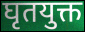
घृतयुक्त